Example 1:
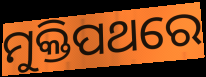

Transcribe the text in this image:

ମୁକ୍ତିପଥରେ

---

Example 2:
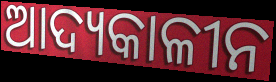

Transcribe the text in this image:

ଆଦ୍ୟକାଳୀନ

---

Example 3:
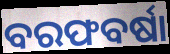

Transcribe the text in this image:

ବରଫବର୍ଷା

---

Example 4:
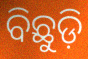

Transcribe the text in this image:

ବିଛୁଡ଼ି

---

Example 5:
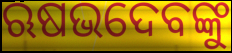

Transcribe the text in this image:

ଋଷଭଦେବଙ୍କୁ